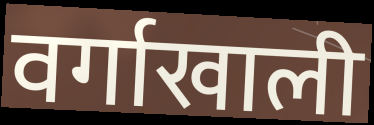
वर्गाखाली